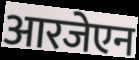
आरजेएन